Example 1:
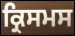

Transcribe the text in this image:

ਕ੍ਰਿਸਮਸ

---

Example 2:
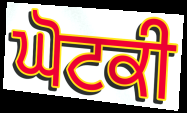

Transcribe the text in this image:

ਘੋਟਕੀ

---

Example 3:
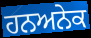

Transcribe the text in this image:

ਹਨਅਨੇਕ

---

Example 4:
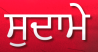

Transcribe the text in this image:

ਸੁਦਾਮੇ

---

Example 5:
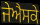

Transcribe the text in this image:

ਜੇਐਸਕੇ